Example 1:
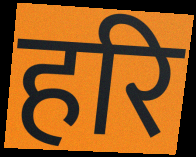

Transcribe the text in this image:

हरि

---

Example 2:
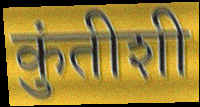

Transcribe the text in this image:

कुंतीशी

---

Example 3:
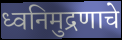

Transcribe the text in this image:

ध्वनिमुद्रणाचे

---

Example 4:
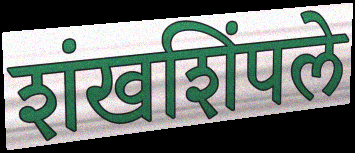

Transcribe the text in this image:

शंखशिंपले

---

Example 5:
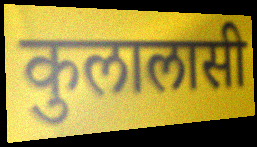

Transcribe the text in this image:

कुलालासी